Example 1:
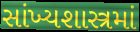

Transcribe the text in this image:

સાંખ્યશાસ્ત્રમાં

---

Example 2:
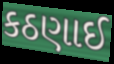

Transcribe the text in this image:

કઠણાઈ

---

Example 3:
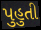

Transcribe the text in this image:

પુહુતી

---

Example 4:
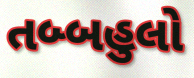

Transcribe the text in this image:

તબ્બહુલો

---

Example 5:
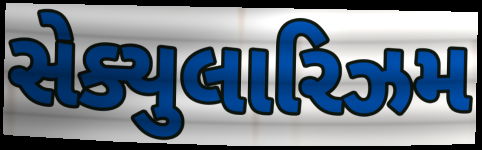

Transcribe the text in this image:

સેક્યુલારિઝમ